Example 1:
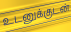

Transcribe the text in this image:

உடனுக்குடன்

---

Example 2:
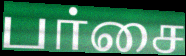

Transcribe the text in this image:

பர்சை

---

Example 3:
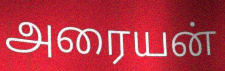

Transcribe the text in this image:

அரையன்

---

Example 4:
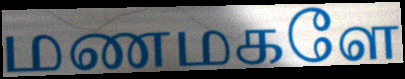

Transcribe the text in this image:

மணமகளே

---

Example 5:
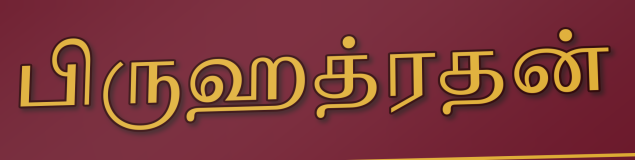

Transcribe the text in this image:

பிருஹத்ரதன்